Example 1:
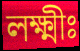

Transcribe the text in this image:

লক্ষ্মীঃ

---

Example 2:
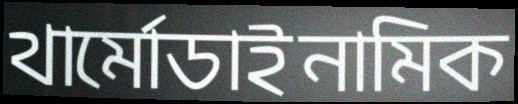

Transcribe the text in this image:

থার্মোডাইনামিক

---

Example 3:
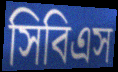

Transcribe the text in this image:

সিবিএস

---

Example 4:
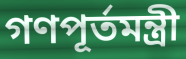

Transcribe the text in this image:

গণপূর্তমন্ত্রী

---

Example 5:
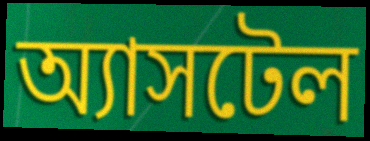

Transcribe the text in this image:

অ্যাসটেল